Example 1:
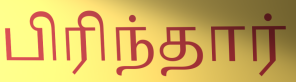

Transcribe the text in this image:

பிரிந்தார்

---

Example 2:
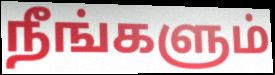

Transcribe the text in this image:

நீங்களும்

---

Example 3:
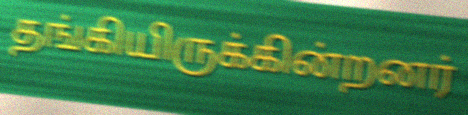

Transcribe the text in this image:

தங்கியிருக்கின்றனர்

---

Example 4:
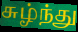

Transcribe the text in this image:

சுழ்ந்து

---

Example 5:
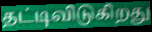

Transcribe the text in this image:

தட்டிவிடுகிறது